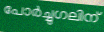
പോർച്ചുഗലിന്